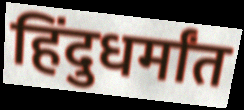
हिंदुधर्मांत